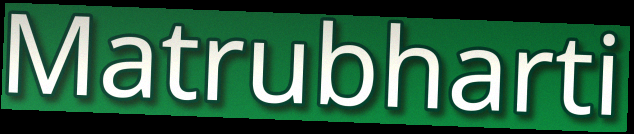
Matrubharti